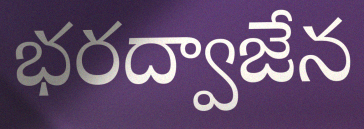
భరద్వాజేన